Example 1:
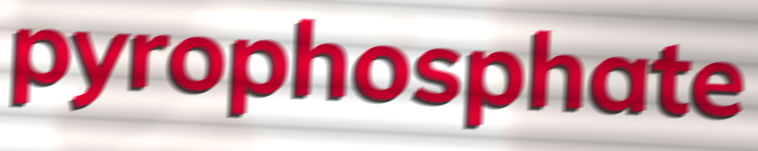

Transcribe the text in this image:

pyrophosphate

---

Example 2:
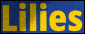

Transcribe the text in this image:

Lilies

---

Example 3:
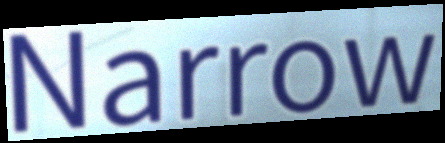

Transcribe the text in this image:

Narrow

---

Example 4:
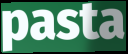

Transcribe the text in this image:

pasta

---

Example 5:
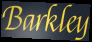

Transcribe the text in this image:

Barkley